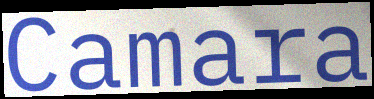
Camara